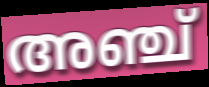
അഞ്ച്